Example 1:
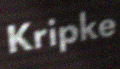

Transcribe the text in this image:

Kripke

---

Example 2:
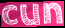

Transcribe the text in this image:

cun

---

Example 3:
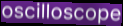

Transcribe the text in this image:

oscilloscope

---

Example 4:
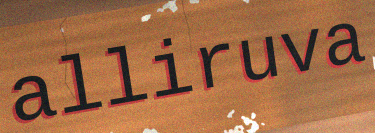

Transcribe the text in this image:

alliruva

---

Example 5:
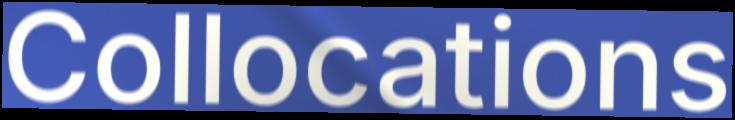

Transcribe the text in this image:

Collocations